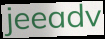
jeeadv